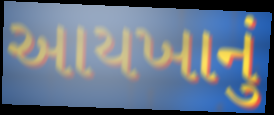
આયખાનું